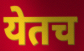
येतच